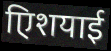
एिशयाई